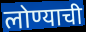
लोण्याची